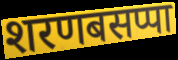
शरणबसप्पा